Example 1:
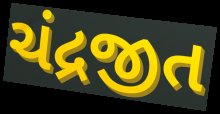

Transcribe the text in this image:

ચંદ્રજીત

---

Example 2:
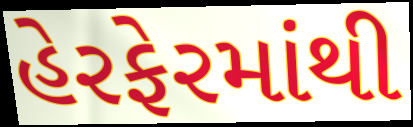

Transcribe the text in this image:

હેરફેરમાંથી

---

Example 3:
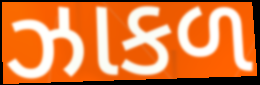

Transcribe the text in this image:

ઝાકળ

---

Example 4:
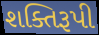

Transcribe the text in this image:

શક્તિરૂપી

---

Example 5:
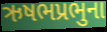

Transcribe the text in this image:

ઋષભપ્રભુના